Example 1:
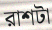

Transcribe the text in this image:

রাশটা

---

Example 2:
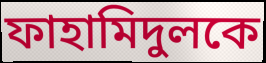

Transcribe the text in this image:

ফাহামিদুলকে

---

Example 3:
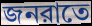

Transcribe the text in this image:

জনরাতে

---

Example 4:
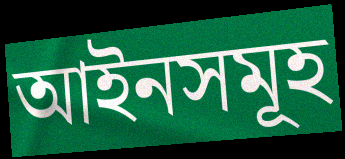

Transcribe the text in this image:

আইনসমূহ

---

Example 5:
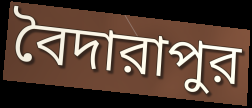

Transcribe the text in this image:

বৈদারাপুর